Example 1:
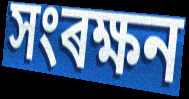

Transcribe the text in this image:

সংৰক্ষন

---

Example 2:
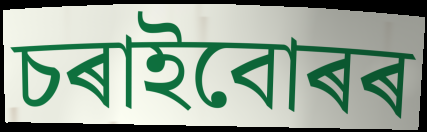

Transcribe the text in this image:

চৰাইবোৰৰ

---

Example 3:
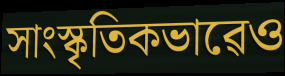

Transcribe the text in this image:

সাংস্কৃতিকভাৱেও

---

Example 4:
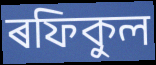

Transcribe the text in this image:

ৰফিকুল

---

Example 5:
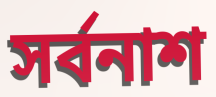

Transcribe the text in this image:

সৰ্বনাশ